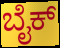
ಬೈಕ್